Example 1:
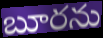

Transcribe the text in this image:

బూరను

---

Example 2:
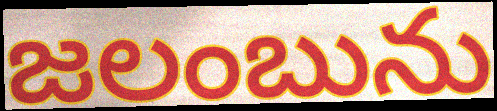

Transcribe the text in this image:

జలంబును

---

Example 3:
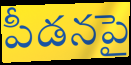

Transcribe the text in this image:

పీడనపై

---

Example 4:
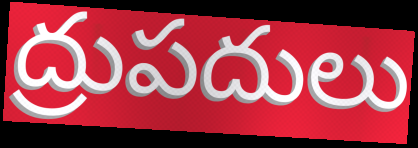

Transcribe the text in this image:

ద్రుపదులు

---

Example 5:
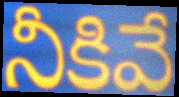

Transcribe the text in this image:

నీకివే